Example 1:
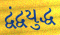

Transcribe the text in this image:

દ્વંદ્વયુદ્ધ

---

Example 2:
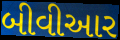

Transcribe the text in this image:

બીવીઆર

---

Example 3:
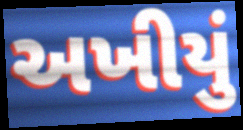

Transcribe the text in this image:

અખીયું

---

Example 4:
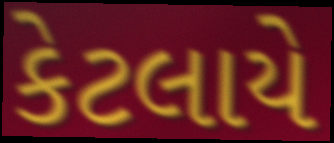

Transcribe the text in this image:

કેટલાયે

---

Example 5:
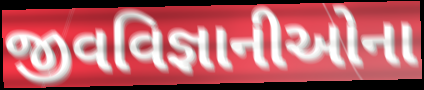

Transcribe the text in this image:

જીવવિજ્ઞાનીઓના